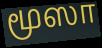
மூஸா